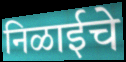
निळाईचे